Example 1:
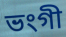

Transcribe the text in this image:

ভংগী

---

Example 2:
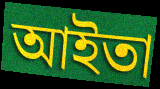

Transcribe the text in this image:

আইতা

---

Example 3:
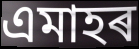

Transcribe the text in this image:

এমাহৰ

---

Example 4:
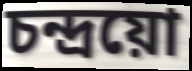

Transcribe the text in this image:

চন্দ্ৰয়ো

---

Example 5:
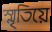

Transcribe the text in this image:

স্মৃতিয়ে